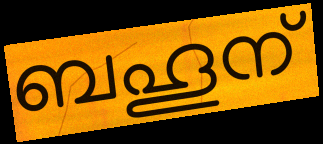
ബഹൂന്